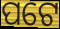
ପଟେ